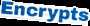
Encrypts